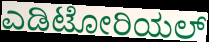
ಎಡಿಟೋರಿಯಲ್